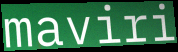
maviri